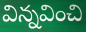
విన్నవించి